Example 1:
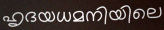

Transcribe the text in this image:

ഹൃദയധമനിയിലെ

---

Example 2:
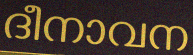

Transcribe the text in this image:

ദീനാവന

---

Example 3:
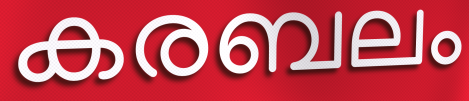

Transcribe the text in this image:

കരബലം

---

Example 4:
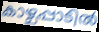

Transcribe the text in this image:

കാഴ്ചപ്പാടിൽ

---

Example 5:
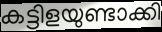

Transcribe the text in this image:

കട്ടിളയുണ്ടാക്കി